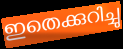
ഇതെക്കുറിച്ചു